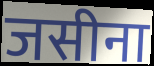
जसीना